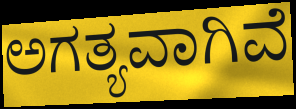
ಅಗತ್ಯವಾಗಿವೆ